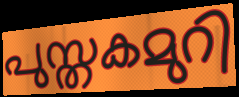
പുസ്തകമുറി